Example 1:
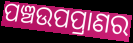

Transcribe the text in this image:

ପଞ୍ଚଉପପ୍ରାଣର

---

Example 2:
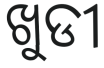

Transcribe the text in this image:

ଖୁଡୀ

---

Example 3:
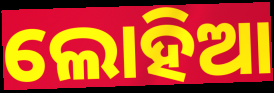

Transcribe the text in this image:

ଲୋହିଆ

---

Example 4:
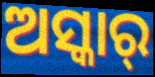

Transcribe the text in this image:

ଅସ୍କାର୍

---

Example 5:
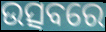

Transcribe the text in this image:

ଉତ୍ସବରେ